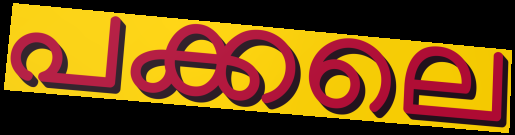
പക്കലെ